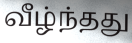
வீழ்ந்தது